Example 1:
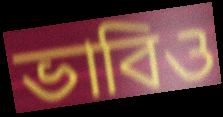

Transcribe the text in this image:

ভাবিও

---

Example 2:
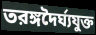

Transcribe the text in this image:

তরঙ্গদৈর্ঘ্যযুক্ত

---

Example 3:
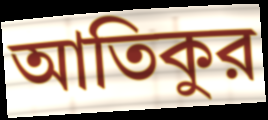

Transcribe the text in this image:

আতিকুর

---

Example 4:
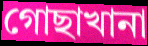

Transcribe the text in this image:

গোছাখানা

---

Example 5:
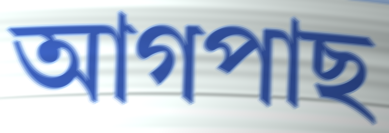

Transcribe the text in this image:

আগপাছ